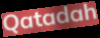
Qatadah